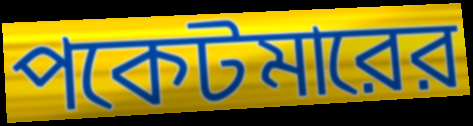
পকেটমারের